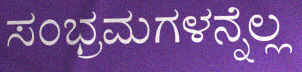
ಸಂಭ್ರಮಗಳನ್ನೆಲ್ಲ